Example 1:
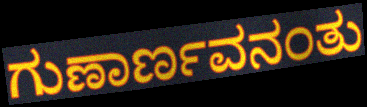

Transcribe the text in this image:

ಗುಣಾರ್ಣವನಂತು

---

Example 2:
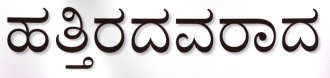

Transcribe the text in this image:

ಹತ್ತಿರದವರಾದ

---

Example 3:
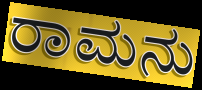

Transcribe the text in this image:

ರಾಮನು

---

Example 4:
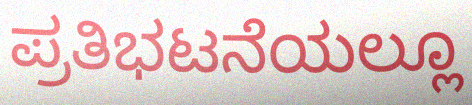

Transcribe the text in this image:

ಪ್ರತಿಭಟನೆಯಲ್ಲೂ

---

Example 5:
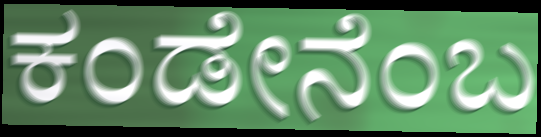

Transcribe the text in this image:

ಕಂಡೇನೆಂಬ